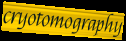
cryotomography